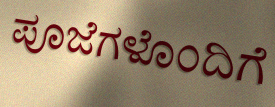
ಪೂಜೆಗಳೊಂದಿಗೆ